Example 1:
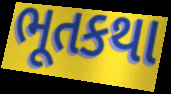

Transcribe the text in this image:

ભૂતકથા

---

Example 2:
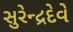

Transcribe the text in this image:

સુરેન્દ્રદેવે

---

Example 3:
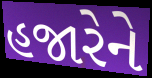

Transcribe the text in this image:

હજારેને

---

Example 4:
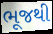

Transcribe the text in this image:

ભૂજથી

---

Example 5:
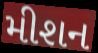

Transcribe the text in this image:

મીશન